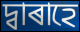
দ্বাৰাহে